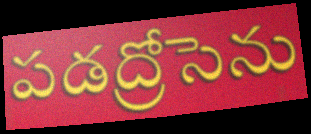
పడద్రోసెను